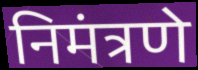
निमंत्रणे